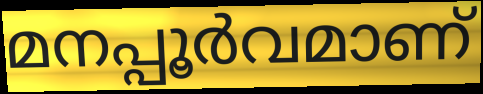
മനപ്പൂർവമാണ്